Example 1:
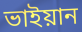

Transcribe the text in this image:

ভাইয়ান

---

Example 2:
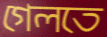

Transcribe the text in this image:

গেলতে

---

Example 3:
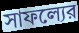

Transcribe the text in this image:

সাফল্যের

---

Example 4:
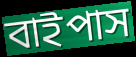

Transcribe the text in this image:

বাইপাস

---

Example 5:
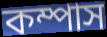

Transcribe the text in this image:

কম্পাস